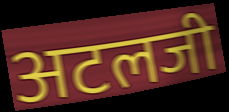
अटलजी